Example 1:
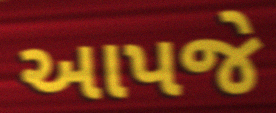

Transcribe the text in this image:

આપજે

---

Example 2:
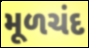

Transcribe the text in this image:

મૂળચંદ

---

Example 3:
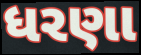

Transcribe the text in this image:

ધરણા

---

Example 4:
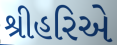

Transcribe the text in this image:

શ્રીહરિએ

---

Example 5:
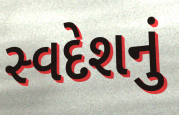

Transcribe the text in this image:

સ્વદેશનું